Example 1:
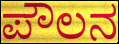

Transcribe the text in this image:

ಪೌಲನ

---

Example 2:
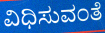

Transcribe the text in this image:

ವಿಧಿಸುವಂತೆ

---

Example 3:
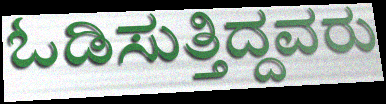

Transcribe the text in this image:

ಓಡಿಸುತ್ತಿದ್ದವರು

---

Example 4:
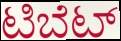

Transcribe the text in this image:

ಟಿಬೆಟ್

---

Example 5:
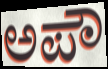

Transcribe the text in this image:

ಅಪೌ